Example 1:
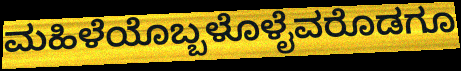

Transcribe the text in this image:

ಮಹಿಳೆಯೊಬ್ಬಳೊಳೈವರೊಡಗೂ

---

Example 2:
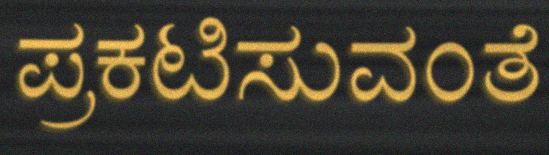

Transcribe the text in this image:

ಪ್ರಕಟಿಸುವಂತೆ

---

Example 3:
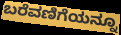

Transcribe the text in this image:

ಬರೆವಣಿಗೆಯನ್ನೂ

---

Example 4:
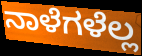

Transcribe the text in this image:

ನಾಳೆಗಳೆಲ್ಲ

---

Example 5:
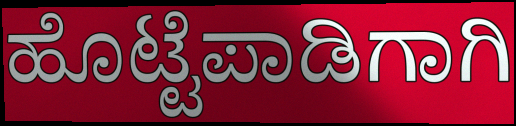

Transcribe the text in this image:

ಹೊಟ್ಟೆಪಾಡಿಗಾಗಿ